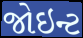
જોઇન્ટ